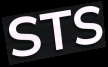
STS